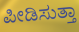
ಪೀಡಿಸುತ್ತಾ